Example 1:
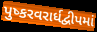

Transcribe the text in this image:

પુષ્કરવરાર્ધદ્વીપમાં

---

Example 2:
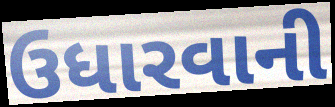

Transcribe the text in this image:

ઉધારવાની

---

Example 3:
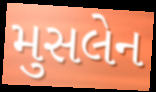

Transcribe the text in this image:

મુસલેન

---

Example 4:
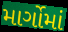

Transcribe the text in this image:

માર્ગોમાં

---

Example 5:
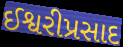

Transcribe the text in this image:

ઈશ્વરીપ્રસાદ